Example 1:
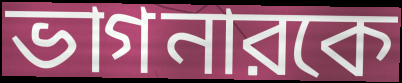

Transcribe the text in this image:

ভাগনারকে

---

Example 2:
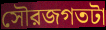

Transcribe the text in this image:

সৌরজগতটা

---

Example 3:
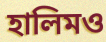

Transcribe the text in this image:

হালিমও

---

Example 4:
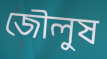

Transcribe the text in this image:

জৌলুষ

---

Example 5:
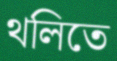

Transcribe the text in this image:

থলিতে